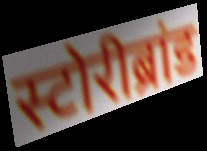
स्टोरीब्रांड